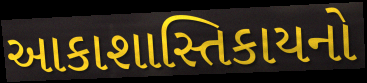
આકાશાસ્તિકાયનો